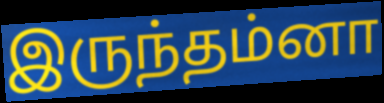
இருந்தம்னா